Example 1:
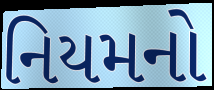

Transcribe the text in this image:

નિયમનો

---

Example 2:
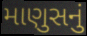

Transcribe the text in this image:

માણુસનું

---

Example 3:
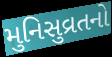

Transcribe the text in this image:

મુનિસુવ્રતનો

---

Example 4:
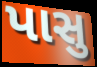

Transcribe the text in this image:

પાસુ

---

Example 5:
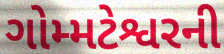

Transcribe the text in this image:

ગોમ્મટેશ્વરની